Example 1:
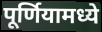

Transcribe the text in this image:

पूर्णियामध्ये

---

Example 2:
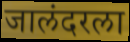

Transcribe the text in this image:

जालंदरला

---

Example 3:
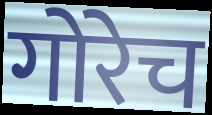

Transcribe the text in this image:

गोरेच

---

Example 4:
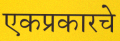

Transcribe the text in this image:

एकप्रकारचे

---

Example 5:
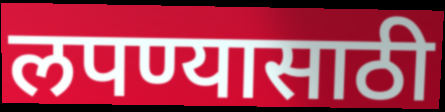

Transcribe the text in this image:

लपण्यासाठी